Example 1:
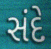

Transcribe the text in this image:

સંદે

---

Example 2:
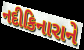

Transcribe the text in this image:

નદીકિનારાને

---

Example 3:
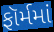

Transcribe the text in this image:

ફૉર્મમાં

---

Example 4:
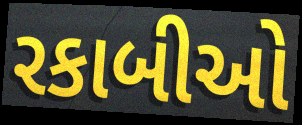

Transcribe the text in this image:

રકાબીઓ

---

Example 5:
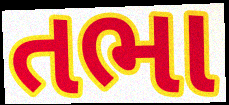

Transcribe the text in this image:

તભા